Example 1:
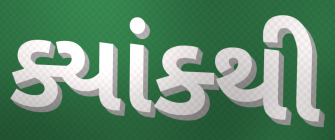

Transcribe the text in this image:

ક્યાંક્થી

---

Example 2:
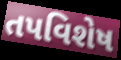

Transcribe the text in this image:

તપવિશેષ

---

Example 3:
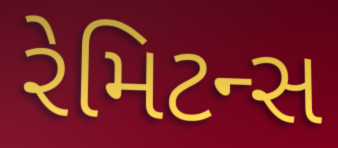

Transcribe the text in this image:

રેમિટન્સ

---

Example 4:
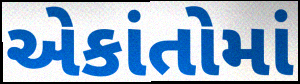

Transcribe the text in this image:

એકાંતોમાં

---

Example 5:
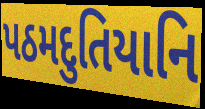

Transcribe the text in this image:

પઠમદુતિયાનિ